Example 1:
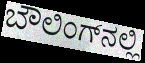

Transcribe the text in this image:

ಬೌಲಿಂಗ್‌ನಲ್ಲಿ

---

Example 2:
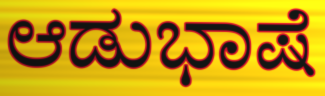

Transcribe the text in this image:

ಆಡುಭಾಷೆ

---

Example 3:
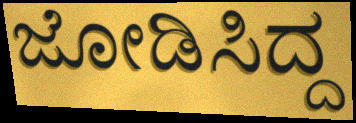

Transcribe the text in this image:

ಜೋಡಿಸಿದ್ದ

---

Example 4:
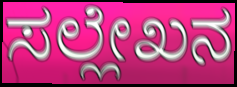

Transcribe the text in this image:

ಸಲ್ಲೇಖನ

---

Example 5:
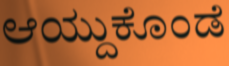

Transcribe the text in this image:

ಆಯ್ದುಕೊಂಡೆ